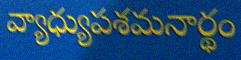
వ్యాధ్యుపశమనార్థం